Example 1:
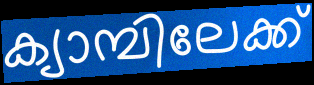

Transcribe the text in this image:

ക്യാമ്പിലേക്ക്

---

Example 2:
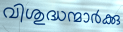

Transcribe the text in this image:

വിശുദ്ധന്മാർക്കു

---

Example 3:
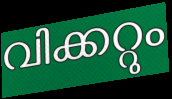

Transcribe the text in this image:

വിക്കറ്റും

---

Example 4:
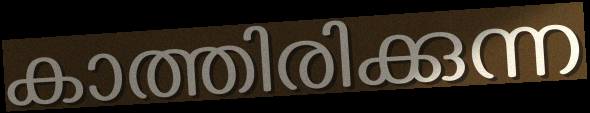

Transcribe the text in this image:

കാത്തിരിക്കുന്ന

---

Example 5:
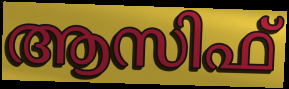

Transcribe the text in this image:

ആസിഫ്